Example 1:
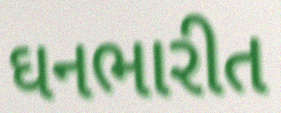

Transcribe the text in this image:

ઘનભારીત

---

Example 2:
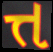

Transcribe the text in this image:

ત્ત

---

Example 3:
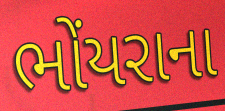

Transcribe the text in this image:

ભોંયરાના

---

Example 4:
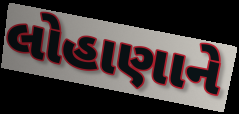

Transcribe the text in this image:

લોહાણાને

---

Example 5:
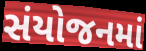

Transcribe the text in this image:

સંયોજનમાં